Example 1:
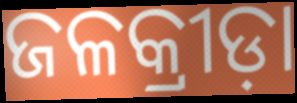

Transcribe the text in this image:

ଜଳକ୍ରୀଡ଼ା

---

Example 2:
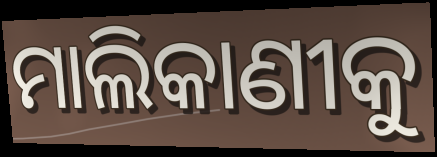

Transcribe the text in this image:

ମାଲିକାଣୀକୁ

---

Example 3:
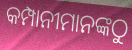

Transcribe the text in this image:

କମ୍ପାନୀମାନଙ୍କଠୁ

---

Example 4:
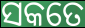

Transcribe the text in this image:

ସକତେ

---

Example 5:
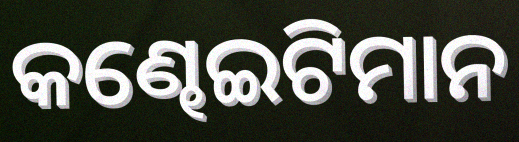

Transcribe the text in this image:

କଣ୍ଢେଇଟିମାନ